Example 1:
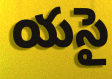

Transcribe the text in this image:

యసై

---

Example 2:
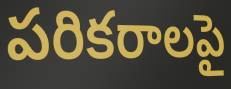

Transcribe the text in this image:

పరికరాలపై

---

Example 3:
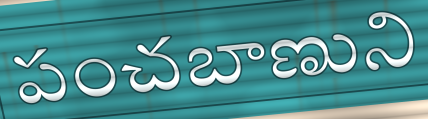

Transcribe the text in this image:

పంచబాణుని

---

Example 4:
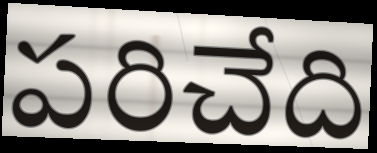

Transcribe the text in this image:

పరిచేది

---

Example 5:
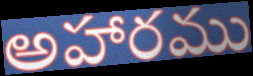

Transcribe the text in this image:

అహారము